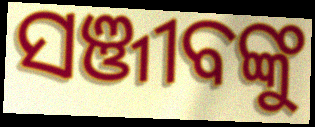
ସଞ୍ଜୀବଙ୍କୁ